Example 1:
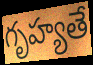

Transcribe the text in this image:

గృహ్యతే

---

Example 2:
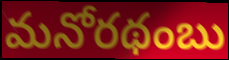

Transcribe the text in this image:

మనోరథంబు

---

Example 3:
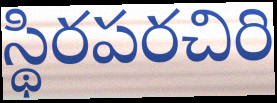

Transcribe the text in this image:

స్థిరపరచిరి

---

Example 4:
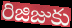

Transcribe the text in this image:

రిజిజుకు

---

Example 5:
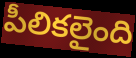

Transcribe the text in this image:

పీలికలైంది